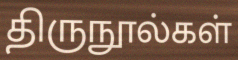
திருநூல்கள்